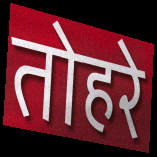
तोहरे